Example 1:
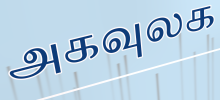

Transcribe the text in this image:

அகவுலக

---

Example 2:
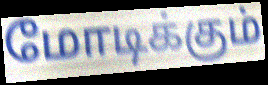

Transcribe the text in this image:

மோடிக்கும்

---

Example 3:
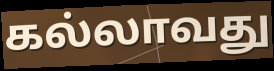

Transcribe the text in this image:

கல்லாவது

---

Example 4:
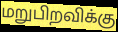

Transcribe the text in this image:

மறுபிறவிக்கு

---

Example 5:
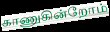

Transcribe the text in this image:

காணுகின்றோம்